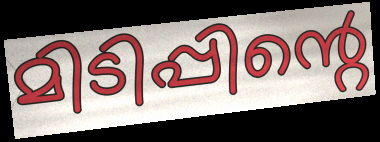
മിടിപ്പിന്റെ